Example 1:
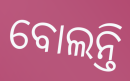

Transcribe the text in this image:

ବୋଲନ୍ତି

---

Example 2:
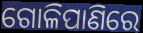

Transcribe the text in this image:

ଗୋଳିପାଣିରେ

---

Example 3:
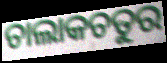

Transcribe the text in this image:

ଚାଲାକଚତୁର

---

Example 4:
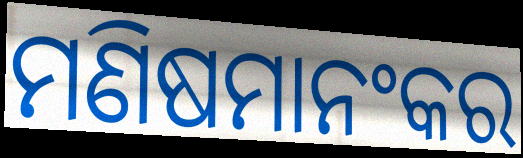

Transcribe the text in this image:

ମଣିଷମାନଂକର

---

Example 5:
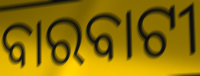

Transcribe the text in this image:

ବାରବାଟୀ